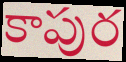
కాపుర